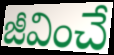
జీవించే